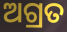
ଅଗ୍ରତ